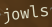
jowls